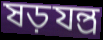
ষড়যন্ত্র